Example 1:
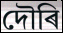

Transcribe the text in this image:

দৌৰি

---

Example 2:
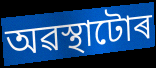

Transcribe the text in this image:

অৱস্থাটোৰ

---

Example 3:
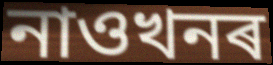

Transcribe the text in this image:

নাওখনৰ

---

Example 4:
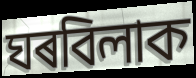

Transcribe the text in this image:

ঘৰবিলাক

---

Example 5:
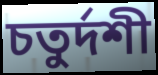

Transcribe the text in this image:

চতুৰ্দশী